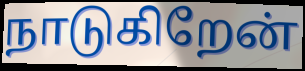
நாடுகிறேன்